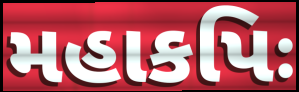
મહાકપિઃ